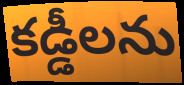
కడ్డీలను